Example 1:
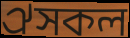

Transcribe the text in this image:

ঐসকল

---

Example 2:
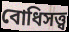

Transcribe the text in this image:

বোধিসত্ত্ব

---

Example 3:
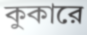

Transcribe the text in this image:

কুকারে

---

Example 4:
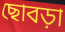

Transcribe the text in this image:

ছোবড়া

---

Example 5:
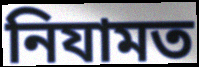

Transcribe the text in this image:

নিযামত